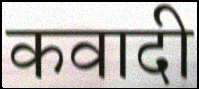
कवादी